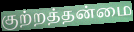
குற்றத்தன்மை